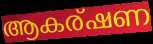
ആകര്ഷണ